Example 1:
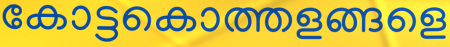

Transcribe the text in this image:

കോട്ടകൊത്തളങ്ങളെ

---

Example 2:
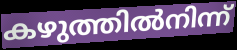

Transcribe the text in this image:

കഴുത്തിൽനിന്ന്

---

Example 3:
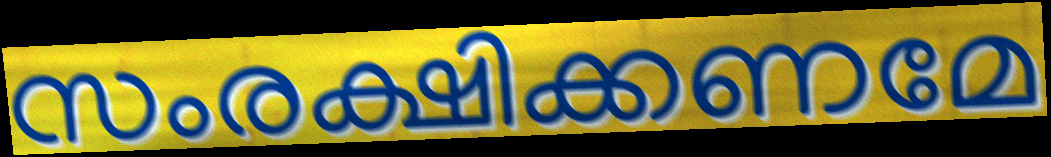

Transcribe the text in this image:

സംരക്ഷിക്കണമേ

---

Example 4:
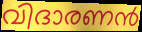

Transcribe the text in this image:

വിദാരണൻ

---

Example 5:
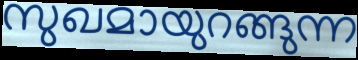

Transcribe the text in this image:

സുഖമായുറങ്ങുന്ന